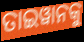
ତାଇୱାନକୁ